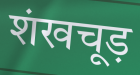
शंखचूड़